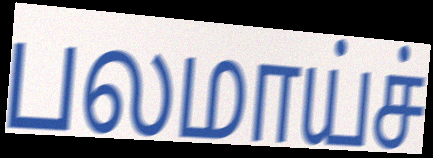
பலமாய்ச்